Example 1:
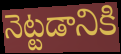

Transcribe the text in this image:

నెట్టడానికి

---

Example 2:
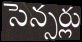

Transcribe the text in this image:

సెన్సర్లు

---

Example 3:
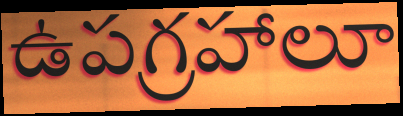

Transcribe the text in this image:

ఉపగ్రహాలూ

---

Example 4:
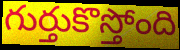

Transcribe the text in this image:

గుర్తుకొస్తోంది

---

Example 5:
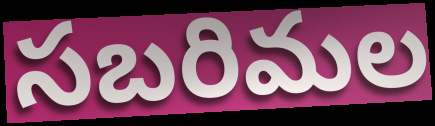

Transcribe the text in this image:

సబరిమల